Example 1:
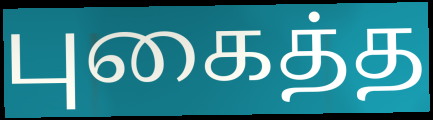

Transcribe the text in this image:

புகைத்த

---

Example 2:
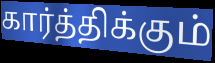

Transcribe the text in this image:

கார்த்திக்கும்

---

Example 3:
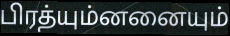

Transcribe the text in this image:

பிரத்யும்னனையும்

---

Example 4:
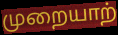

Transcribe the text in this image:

முறையாற்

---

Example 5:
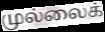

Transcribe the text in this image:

முல்லைக்